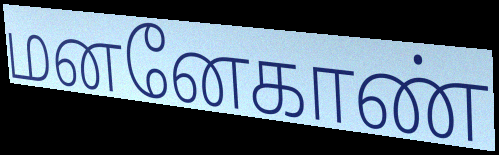
மனனேகாண்